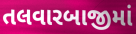
તલવારબાજીમાં